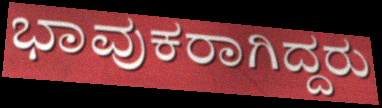
ಭಾವುಕರಾಗಿದ್ದರು